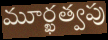
మూర్ఖత్వపు